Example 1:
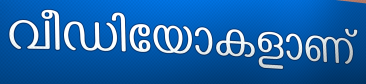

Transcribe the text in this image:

വീഡിയോകളാണ്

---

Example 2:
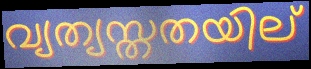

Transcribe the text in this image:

വ്യത്യസ്തതയില്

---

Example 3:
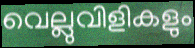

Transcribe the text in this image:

വെല്ലുവിളികളും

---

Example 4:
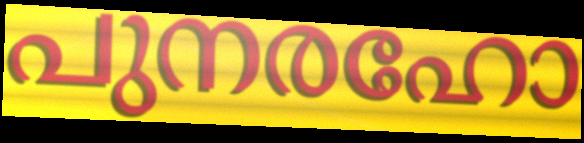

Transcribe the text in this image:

പുനരഹോ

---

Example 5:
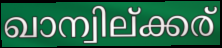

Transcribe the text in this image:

ഖാന്വില്ക്കര്